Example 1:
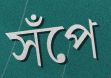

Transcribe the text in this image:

সঁপে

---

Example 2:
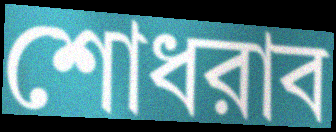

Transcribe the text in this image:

শোধরাব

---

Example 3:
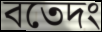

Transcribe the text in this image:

বতেদং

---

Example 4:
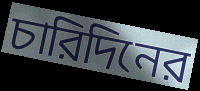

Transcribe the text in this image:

চারিদিনের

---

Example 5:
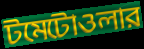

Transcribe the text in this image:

টমেটোওলার